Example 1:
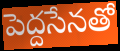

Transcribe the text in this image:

పెద్దసేనతో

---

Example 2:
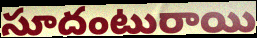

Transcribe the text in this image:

సూదంటురాయి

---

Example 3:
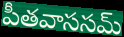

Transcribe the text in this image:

పీతవాససమ్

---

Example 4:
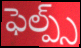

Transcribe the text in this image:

ఫెల్ప్స్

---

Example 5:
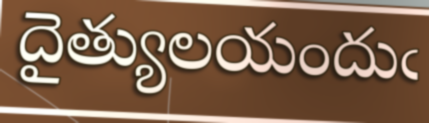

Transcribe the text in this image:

దైత్యులయందుఁ